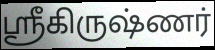
ஶ்ரீகிருஷ்ணர்